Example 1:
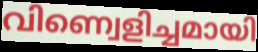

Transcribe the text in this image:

വിണ്വെളിച്ചമായി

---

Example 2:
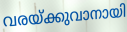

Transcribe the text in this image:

വരയ്ക്കുവാനായി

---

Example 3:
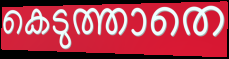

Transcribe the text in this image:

കെടുത്താതെ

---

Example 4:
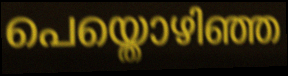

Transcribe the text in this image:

പെയ്തൊഴിഞ്ഞ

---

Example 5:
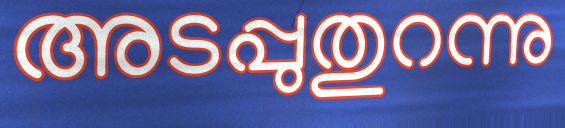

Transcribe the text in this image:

അടപ്പുതുറന്നു